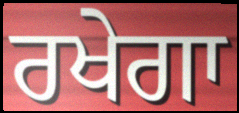
ਰਖੇਗਾ